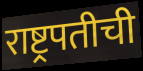
राष्ट्रपतीची